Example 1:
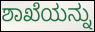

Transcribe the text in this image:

ಶಾಖೆಯನ್ನು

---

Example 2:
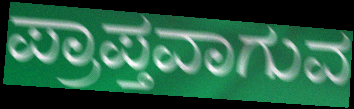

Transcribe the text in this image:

ಪ್ರಾಪ್ತವಾಗುವ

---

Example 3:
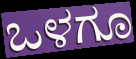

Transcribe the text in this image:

ಒಳಗೂ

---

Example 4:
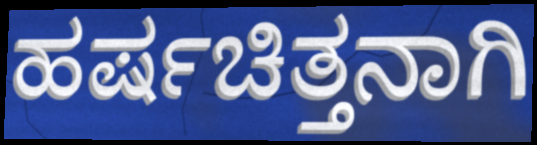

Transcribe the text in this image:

ಹರ್ಷಚಿತ್ತನಾಗಿ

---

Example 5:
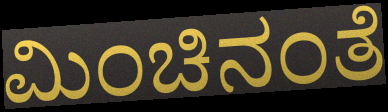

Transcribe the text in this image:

ಮಿಂಚಿನಂತೆ